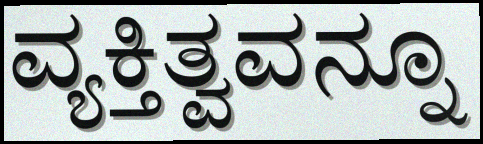
ವ್ಯಕ್ತಿತ್ವವನ್ನೂ